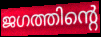
ജഗത്തിന്റെ